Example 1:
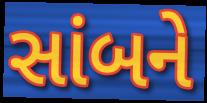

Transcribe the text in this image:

સાંબને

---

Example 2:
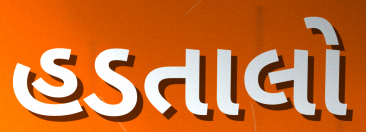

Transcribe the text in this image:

હડતાલો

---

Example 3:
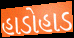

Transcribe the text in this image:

હાડોહાડ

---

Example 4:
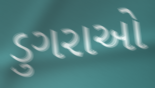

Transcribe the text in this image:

ડુગરાઓ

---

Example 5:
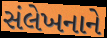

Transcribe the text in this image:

સંલેખનાને